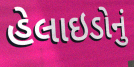
હેલાઇડોનું